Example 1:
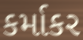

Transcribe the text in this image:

કર્માકર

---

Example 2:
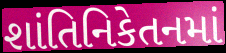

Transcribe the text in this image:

શાંતિનિકેતનમાં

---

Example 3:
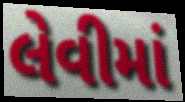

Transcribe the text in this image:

લેવીમાં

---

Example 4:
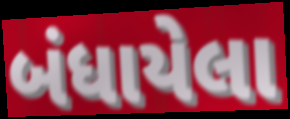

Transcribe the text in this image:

બંધાયેલા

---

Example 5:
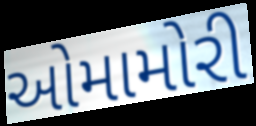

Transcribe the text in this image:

ઓમામોરી